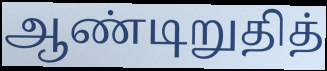
ஆண்டிறுதித்